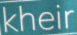
kheir